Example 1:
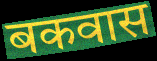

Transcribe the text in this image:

बकवास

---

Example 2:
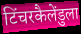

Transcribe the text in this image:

टिंचरकैलेंडुला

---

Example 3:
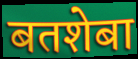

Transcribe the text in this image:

बतशेबा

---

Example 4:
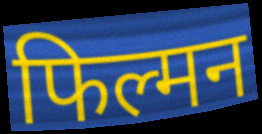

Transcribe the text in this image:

फिल्मन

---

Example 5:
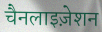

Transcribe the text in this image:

चैनलाइज़ेशन